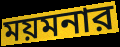
ময়মনার